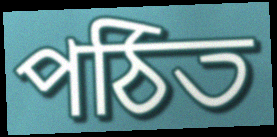
পঠিত